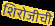
शिरोजीची